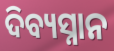
ଦିବ୍ୟସ୍ନାନ